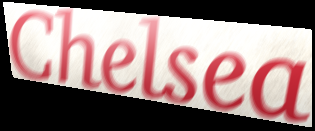
Chelsea